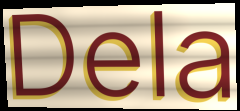
Dela